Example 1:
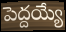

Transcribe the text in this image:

పెద్దయ్యే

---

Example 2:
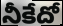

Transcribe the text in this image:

నీకేదో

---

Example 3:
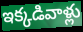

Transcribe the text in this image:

ఇక్కడివాళ్లు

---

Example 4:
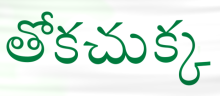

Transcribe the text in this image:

తోకచుక్క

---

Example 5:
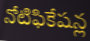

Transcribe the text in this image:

నోటిఫికేషన్ల